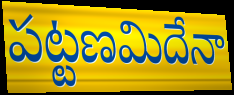
పట్టణమిదేనా